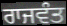
ਰਾਜਵੰਤ